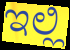
ಇಲ್ಲಿ